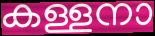
കള്ളനാ